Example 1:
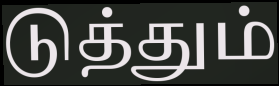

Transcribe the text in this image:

டுத்தும்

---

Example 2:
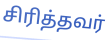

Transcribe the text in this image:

சிரித்தவர்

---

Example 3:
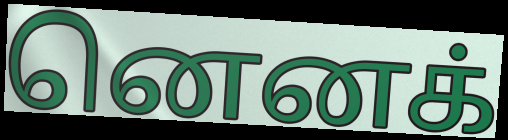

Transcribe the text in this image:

னெனக்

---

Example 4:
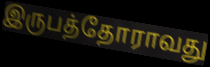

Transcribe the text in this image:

இருபத்தோராவது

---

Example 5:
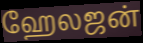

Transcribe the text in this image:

ஹேலஜன்